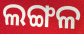
ଲଙ୍ଗଳ